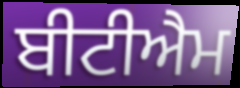
ਬੀਟੀਐਮ